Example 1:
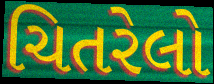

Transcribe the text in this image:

ચિતરેલો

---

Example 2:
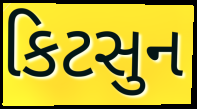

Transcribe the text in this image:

કિટસુન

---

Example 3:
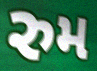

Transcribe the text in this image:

રુમ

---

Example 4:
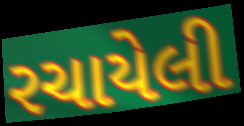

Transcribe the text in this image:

રચાયેલી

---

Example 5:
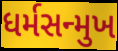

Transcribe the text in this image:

ધર્મસન્મુખ